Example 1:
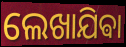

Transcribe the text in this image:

ଲେଖାଯିଵା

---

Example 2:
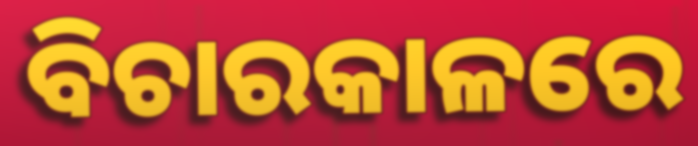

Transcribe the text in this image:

ବିଚାରକାଳରେ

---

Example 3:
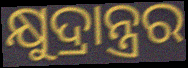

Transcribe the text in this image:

କ୍ଷୁଦ୍ରାନ୍ତ୍ରର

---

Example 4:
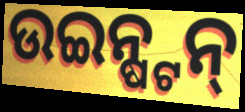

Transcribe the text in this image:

ଉଇନ୍ଷ୍ଟନ୍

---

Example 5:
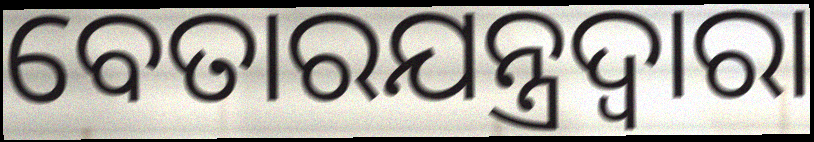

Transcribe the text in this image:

ବେତାରଯନ୍ତ୍ରଦ୍ୱାରା